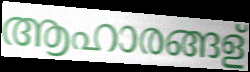
ആഹാരങ്ങള്